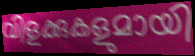
വിളക്കുകളുമായി